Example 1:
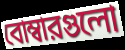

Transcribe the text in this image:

বোম্বারগুলো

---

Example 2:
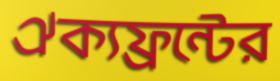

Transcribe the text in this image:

ঐক্যফ্রন্টের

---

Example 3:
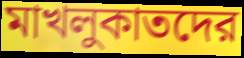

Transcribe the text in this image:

মাখলুকাতদের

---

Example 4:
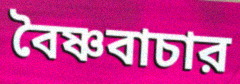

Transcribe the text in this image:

বৈষ্ণবাচার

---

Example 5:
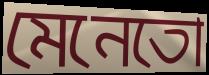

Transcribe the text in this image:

মেনেতো